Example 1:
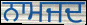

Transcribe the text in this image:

ਨਾਮਜਦ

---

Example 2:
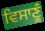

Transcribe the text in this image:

ਵਿਸਾਣੂੰ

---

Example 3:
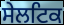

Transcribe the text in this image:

ਸੇਲਟਿਕ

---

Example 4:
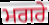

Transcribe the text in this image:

ਮਗਰੇ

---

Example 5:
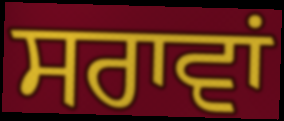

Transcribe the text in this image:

ਸਰਾਵਾਂ